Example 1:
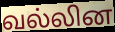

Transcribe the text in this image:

வல்லின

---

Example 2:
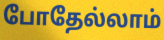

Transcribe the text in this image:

போதேல்லாம்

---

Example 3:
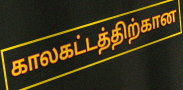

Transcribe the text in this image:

காலகட்டத்திற்கான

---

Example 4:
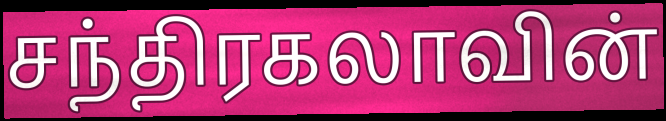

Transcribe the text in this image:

சந்திரகலாவின்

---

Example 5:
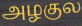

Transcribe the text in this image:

அழகுல